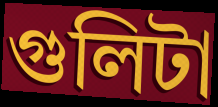
গুলিটা